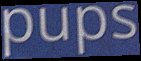
pups